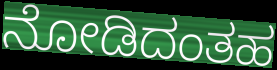
ನೋಡಿದಂತಹ